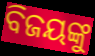
ବିଜୟଙ୍କୁ